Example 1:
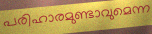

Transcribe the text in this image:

പരിഹാരമുണ്ടാവുമെന്ന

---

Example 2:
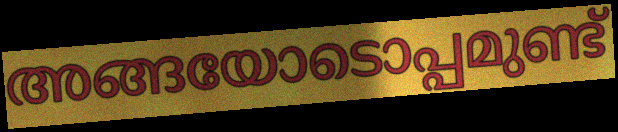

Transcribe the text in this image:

അങ്ങയോടൊപ്പമുണ്ട്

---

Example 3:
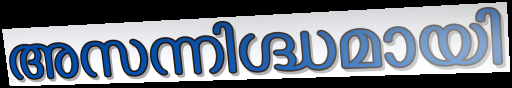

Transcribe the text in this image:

അസന്നിഗ്ദ്ധമായി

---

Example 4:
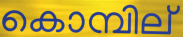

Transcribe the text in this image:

കൊമ്പില്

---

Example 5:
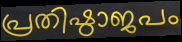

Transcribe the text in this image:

പ്രതിഷ്ഠാജപം